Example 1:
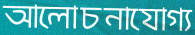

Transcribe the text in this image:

আলোচনাযোগ্য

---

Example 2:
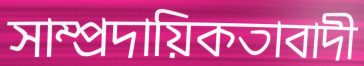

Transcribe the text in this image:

সাম্প্রদায়িকতাবাদী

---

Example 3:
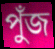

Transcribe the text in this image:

পুঁজ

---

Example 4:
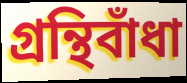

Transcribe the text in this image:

গ্রন্থিবাঁধা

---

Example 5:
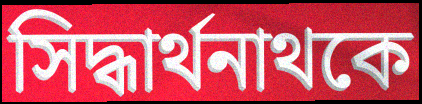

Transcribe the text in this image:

সিদ্ধার্থনাথকে